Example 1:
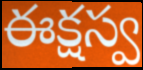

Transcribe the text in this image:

ఈక్షస్వ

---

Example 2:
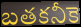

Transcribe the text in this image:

బతకనీకె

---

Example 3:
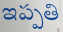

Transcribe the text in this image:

ఇప్పతి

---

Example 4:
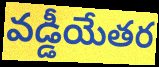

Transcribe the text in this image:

వడ్డీయేతర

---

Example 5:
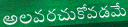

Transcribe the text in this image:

అలవరచుకోవడమే